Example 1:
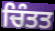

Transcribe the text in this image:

ਚਿੰਤਤ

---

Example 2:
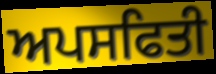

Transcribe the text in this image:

ਅਪਸਫਿਤੀ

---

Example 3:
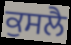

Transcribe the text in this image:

ਕੁਸਲੈ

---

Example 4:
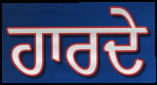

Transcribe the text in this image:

ਹਾਰਦੇ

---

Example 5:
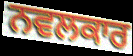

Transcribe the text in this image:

ਨਵਲਕਾਰ